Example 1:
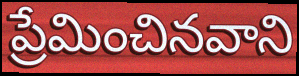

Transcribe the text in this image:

ప్రేమించినవాని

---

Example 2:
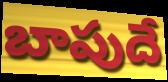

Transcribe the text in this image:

బాపుదే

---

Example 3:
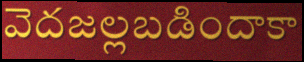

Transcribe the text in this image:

వెదజల్లబడిందాకా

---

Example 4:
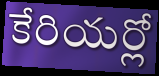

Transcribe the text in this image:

కేరియర్లో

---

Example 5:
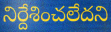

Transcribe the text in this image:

నిర్దేశించలేదని